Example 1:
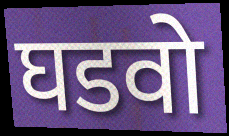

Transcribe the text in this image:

घडवो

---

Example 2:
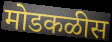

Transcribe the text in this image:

मोडकळीस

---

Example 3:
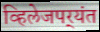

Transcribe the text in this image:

व्हिलेजपर्यंत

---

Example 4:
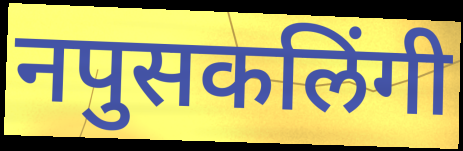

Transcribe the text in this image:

नपुसकलिंगी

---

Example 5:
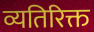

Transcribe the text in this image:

व्यतिरिक्त